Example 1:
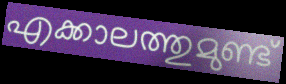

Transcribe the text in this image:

എക്കാലത്തുമുണ്ട്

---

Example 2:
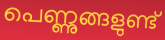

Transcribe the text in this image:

പെണ്ണുങ്ങളുണ്ട്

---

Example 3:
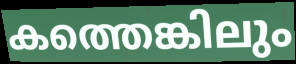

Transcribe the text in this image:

കത്തെങ്കിലും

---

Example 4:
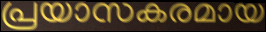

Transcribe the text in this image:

പ്രയാസകരമായ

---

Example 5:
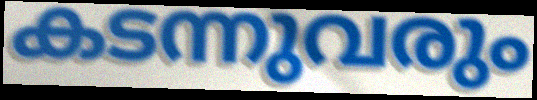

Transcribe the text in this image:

കടന്നുവരും